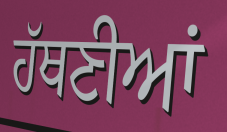
ਹੱਥਣੀਆਂ